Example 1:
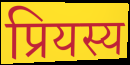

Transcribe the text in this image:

प्रियस्य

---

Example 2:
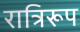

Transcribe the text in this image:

रात्रिरूप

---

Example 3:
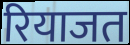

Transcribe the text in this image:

रियाजत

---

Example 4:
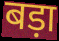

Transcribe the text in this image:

बड़ा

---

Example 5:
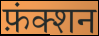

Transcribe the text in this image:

फ़ंक्शन